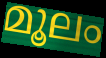
മൂലം